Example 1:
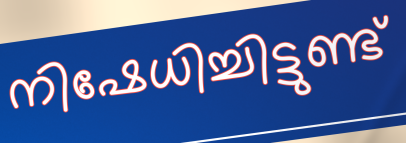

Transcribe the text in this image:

നിഷേധിച്ചിട്ടുണ്ട്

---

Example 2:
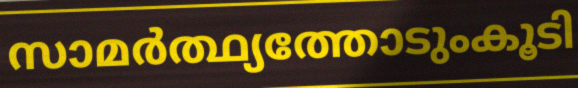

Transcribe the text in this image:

സാമർത്ഥ്യത്തോടുംകൂടി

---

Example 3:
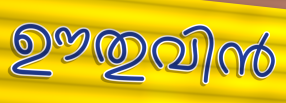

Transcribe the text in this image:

ഊതുവിൻ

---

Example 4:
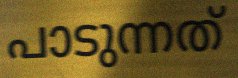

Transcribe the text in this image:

പാടുന്നത്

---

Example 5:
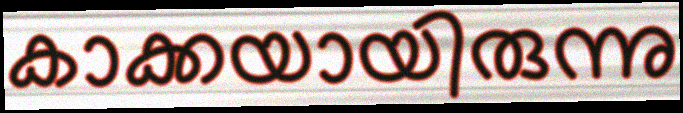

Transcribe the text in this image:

കാക്കയായിരുന്നു